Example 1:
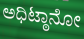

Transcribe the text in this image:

ಅಧಿಟ್ಠಾನೋ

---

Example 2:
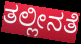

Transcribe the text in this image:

ತಲ್ಲೀನತೆ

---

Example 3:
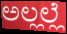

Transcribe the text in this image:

ಅಲ್ಲಲ್ಲೆ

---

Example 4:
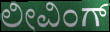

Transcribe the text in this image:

ಲೀವಿಂಗ್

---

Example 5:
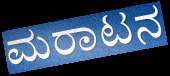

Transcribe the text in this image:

ಮರಾಟನ